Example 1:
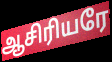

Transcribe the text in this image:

ஆசிரியரே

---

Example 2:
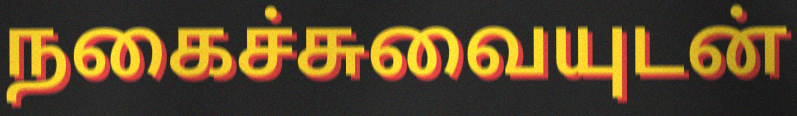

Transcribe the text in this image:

நகைச்சுவையுடன்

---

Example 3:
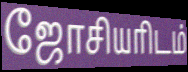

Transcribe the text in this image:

ஜோசியரிடம்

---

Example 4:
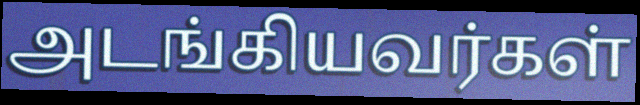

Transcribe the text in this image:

அடங்கியவர்கள்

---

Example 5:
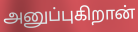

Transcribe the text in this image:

அனுப்புகிறான்